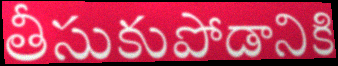
తీసుకుపోడానికి